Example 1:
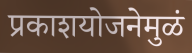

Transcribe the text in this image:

प्रकाशयोजनेमुळं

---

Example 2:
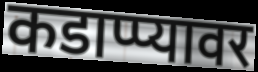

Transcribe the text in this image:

कडाप्प्यावर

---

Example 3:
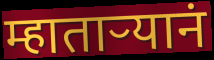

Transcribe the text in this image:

म्हाताऱ्यानं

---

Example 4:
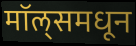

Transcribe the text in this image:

मॉल्समधून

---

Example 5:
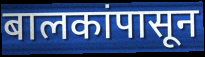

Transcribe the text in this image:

बालकांपासून